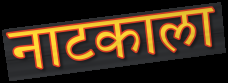
नाटकाला